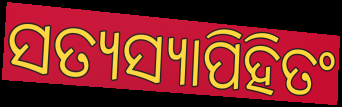
ସତ୍ୟସ୍ୟାପିହିତଂ